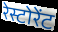
रेस्टोरेंट